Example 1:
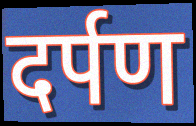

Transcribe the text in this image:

दर्पण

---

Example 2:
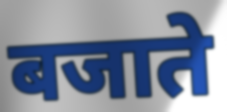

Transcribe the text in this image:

बजाते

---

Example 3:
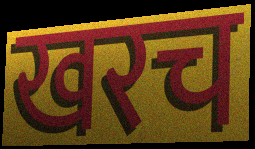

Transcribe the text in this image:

खरच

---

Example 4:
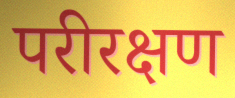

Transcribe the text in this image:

परीरक्षण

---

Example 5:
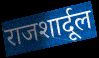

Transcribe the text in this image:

राजशार्दूल